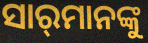
ସାର୍‌ମାନଙ୍କୁ